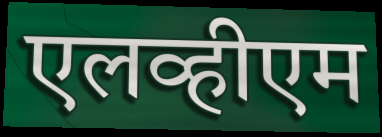
एलव्हीएम